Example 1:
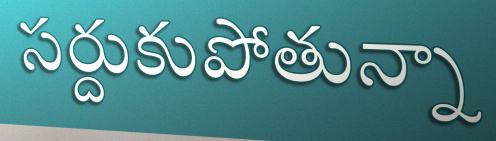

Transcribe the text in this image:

సర్దుకుపోతున్నా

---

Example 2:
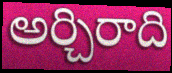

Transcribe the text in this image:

అర్చిరాది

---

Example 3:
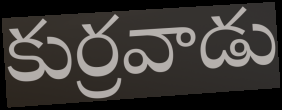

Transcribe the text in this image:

కుర్రవాడు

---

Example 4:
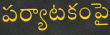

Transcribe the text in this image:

పర్యాటకంపై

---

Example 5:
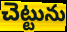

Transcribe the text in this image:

చెట్టును